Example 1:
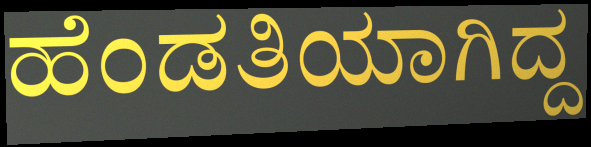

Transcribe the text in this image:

ಹೆಂಡತಿಯಾಗಿದ್ದ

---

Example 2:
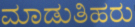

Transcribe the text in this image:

ಮಾಡುತಿಹರು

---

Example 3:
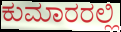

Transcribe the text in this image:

ಕುಮಾರರಲ್ಲಿ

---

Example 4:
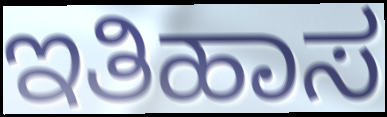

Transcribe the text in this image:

ಇತಿಹಾಸ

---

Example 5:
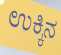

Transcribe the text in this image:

ಉಕ್ಕಿನ